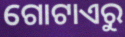
ଗୋଟାଏରୁ